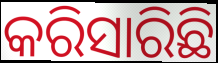
କରିସାରିଛି